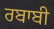
ਰਬਾਬੀ